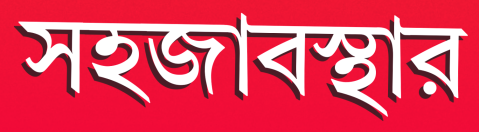
সহজাবস্থার